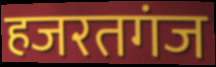
हजरतगंज